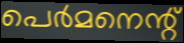
പെർമനെന്റ്